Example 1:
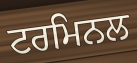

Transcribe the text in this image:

ਟਰਮਿਨਲ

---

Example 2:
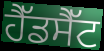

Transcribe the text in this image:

ਹੈੱਡਸੈੱਟ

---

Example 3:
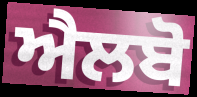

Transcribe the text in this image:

ਐਲਬੋ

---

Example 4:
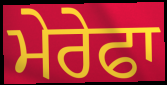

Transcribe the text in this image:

ਮੇਰੇਫਾ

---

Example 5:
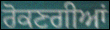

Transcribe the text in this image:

ਰੋਕਣਗੀਆਂ